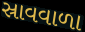
સ્રાવવાળા